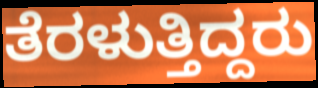
ತೆರಳುತ್ತಿದ್ದರು